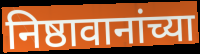
निष्ठावानांच्या